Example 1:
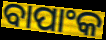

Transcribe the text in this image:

ବାପାଂକ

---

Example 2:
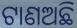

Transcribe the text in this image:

ଟାଣଅଛି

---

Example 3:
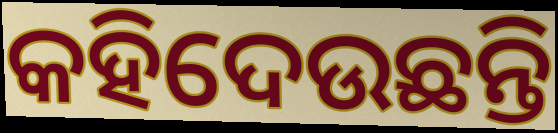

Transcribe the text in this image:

କହିଦେଉଛନ୍ତି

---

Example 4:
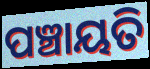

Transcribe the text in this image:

ପଞ୍ଚାୟତି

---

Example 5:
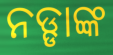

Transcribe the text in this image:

ନଡ୍ଡାଙ୍କ